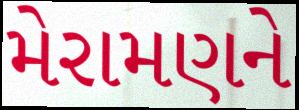
મેરામણને